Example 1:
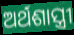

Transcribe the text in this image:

ଅର୍ଥଶାସ୍ତ୍ରୀ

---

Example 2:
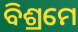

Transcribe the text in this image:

ବିଶ୍ରମେ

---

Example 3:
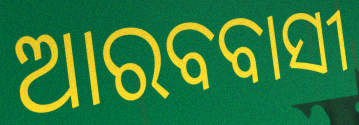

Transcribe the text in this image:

ଆରବବାସୀ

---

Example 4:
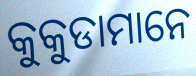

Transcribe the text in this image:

କୁକୁଡାମାନେ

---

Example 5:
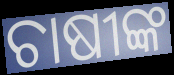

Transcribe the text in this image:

ଚାଷୀଙ୍କ